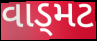
વાડ્મટ